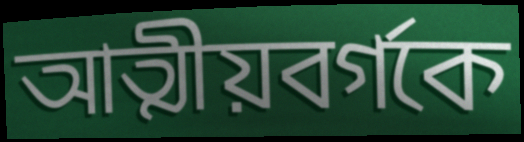
আত্মীয়বর্গকে